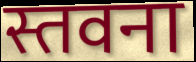
स्तवना